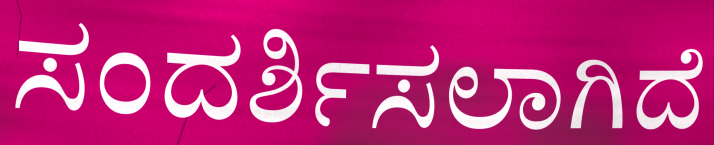
ಸಂದರ್ಶಿಸಲಾಗಿದೆ